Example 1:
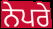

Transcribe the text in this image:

ਨੇਪਰੇ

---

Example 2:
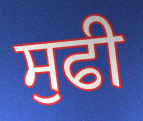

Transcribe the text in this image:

ਸੁਫੀ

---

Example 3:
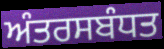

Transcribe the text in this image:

ਅੰਤਰਸਬੰਧਤ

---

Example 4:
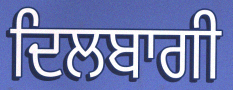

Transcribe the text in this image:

ਦਿਲਬਾਗੀ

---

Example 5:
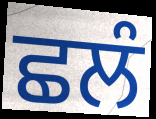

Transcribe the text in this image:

ਛਲੰ